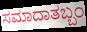
ಸಮಾದಾತಬ್ಬಂ